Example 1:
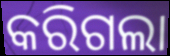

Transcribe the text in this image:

କରିଗଲା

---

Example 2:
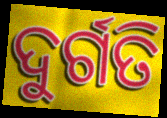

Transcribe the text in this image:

ଦୁର୍ଗତି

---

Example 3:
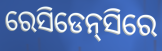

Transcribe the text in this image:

ରେସିଡେନ୍‌ସିରେ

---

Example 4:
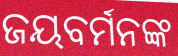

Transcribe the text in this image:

ଜୟବର୍ମନଙ୍କ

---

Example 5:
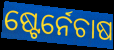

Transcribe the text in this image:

ଷ୍ଟେର୍ନେଚାଷ